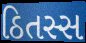
ઠિતસ્સ